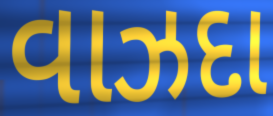
વાઝદા